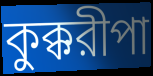
কুক্করীপা